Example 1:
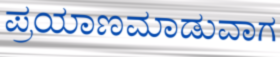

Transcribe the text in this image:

ಪ್ರಯಾಣಮಾಡುವಾಗ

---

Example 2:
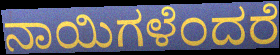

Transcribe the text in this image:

ನಾಯಿಗಳೆಂದರೆ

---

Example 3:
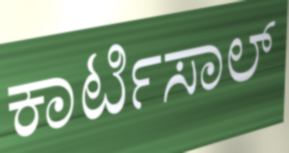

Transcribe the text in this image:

ಕಾರ್ಟಿಸಾಲ್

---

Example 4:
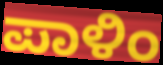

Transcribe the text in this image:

ಪಾಳಿಂ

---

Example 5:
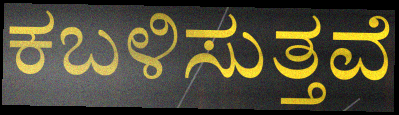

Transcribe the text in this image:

ಕಬಳಿಸುತ್ತವೆ